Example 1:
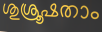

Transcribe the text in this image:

ശുശ്രൂഷതാം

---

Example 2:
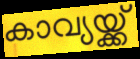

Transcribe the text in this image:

കാവ്യയ്ക്ക്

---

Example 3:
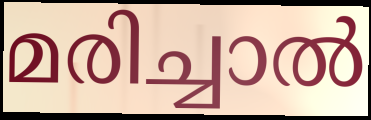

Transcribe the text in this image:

മരിച്ചാൽ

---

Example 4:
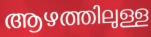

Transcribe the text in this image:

ആഴത്തിലുള്ള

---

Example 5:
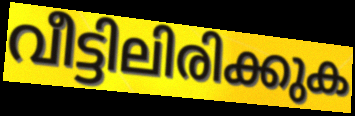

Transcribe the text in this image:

വീട്ടിലിരിക്കുക